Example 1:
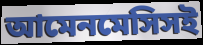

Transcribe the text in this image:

আমেনমেসিসই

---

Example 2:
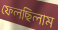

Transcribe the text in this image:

ফেলছিলাম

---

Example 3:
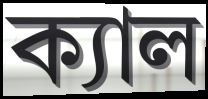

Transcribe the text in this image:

ক্যাল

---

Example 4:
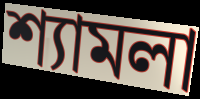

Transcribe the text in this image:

শ্যামলা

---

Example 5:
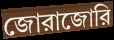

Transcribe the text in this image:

জোরাজোরি